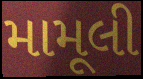
મામૂલી